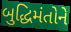
બુદ્ધિમંતોને